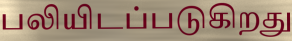
பலியிடப்படுகிறது